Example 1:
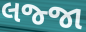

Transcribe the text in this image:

લજ્જા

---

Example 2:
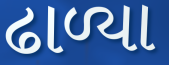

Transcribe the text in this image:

ઢાળ્યા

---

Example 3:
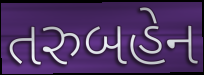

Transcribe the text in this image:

તરુબહેન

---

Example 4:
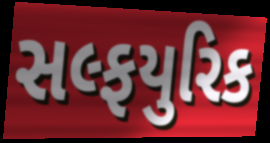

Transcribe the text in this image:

સલ્ફયુરિક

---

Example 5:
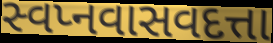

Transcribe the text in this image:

સ્વપ્નવાસવદત્તા